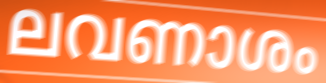
ലവണാശം